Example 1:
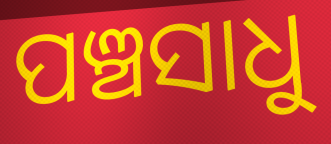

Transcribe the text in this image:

ପଞ୍ଚସାଧୁ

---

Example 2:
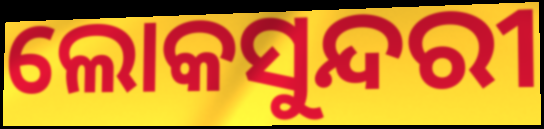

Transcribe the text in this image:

ଲୋକସୁନ୍ଦରୀ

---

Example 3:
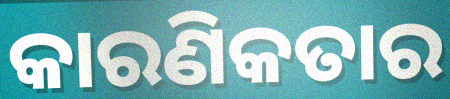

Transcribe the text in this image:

କାରଣିକତାର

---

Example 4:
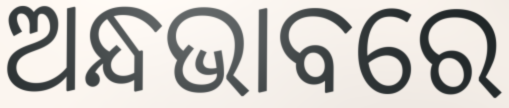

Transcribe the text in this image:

ଅନ୍ଧଭାବରେ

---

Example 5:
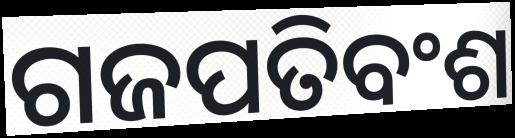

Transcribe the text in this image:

ଗଜପତିବଂଶ